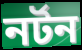
নৰ্টন